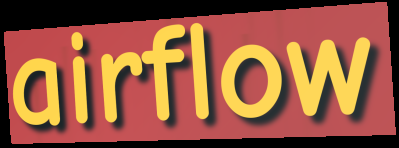
airflow